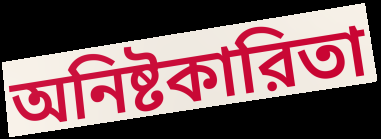
অনিষ্টকারিতা